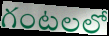
గంటలలో